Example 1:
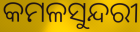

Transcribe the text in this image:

କମଳସୁନ୍ଦରୀ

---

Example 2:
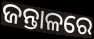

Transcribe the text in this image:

ଜନ୍ତାଳରେ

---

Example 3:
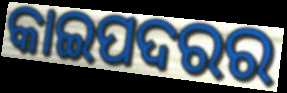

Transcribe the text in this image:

କାଇପଦରର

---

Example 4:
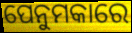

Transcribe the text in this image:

ପେନୁମକାରେ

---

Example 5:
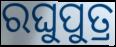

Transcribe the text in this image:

ରଘୁପୁତ୍ର